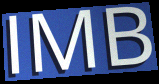
IMB